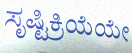
ಸೃಷ್ಟಿಕ್ರಿಯೆಯೇ